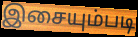
இசையும்படி